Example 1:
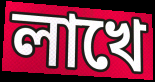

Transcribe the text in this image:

লাখে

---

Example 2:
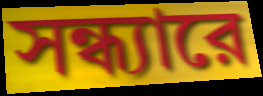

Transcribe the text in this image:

সন্ধ্যারে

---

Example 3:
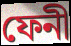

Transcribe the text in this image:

ফেনী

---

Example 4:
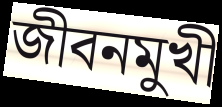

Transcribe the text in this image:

জীবনমুখী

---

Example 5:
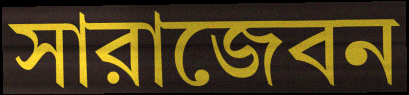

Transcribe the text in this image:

সারাজেবন